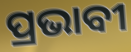
ପ୍ରଭାବୀ